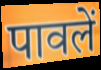
पावलें